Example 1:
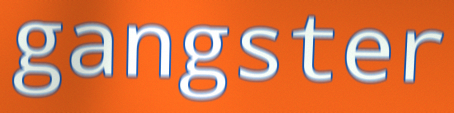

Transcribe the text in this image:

gangster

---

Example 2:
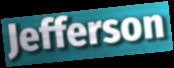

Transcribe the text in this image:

Jefferson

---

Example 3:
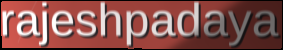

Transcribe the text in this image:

rajeshpadaya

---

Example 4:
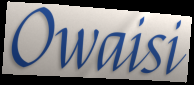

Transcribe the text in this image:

Owaisi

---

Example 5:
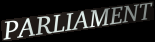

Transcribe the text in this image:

PARLIAMENT